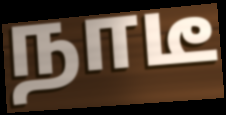
நாடீ